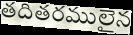
తదితరములైన